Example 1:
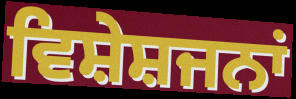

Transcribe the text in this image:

ਵਿਸ਼ੇਸ਼ਜਨਾਂ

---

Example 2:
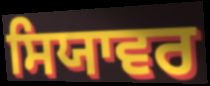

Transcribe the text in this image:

ਸਿਯਾਵਰ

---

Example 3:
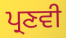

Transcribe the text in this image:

ਪ੍ਰਣਵੀ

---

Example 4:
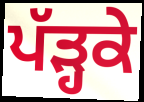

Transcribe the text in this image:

ਪੱੜ੍ਹਕੇ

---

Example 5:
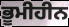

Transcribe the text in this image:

ਭੂਮੀਹੀਨ